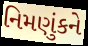
નિમણુંકને